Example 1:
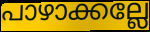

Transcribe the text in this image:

പാഴാക്കല്ലേ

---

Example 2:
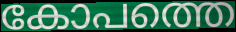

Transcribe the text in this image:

കോപത്തെ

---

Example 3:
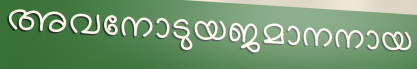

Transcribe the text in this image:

അവനോടുയജമാനനായ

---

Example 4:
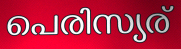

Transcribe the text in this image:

പെരിസ്യര്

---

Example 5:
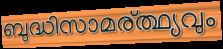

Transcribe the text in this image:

ബുദ്ധിസാമര്ത്ഥ്യവും